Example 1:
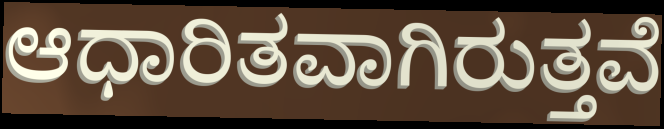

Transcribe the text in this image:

ಆಧಾರಿತವಾಗಿರುತ್ತವೆ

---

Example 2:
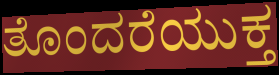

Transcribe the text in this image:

ತೊಂದರೆಯುಕ್ತ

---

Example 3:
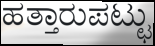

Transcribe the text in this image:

ಹತ್ತಾರುಪಟ್ಟು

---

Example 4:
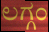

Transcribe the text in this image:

ಲಗ್ಗಂ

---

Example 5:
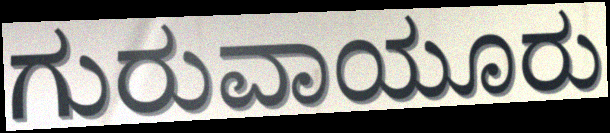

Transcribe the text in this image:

ಗುರುವಾಯೂರು